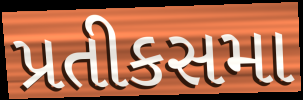
પ્રતીકસમા